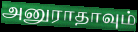
அனுராதாவும்